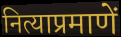
नित्याप्रमाणें